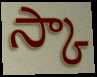
స్కా